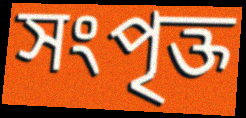
সংপৃক্ত